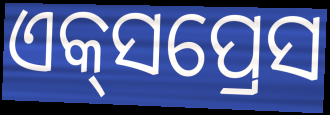
ଏକ୍‍ସପ୍ରେସ